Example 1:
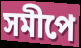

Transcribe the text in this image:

সমীপে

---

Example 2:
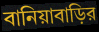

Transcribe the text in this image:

বানিয়াবাড়ির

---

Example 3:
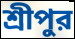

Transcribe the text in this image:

শ্রীপুর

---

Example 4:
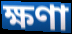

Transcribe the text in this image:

ক্ষণা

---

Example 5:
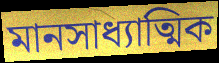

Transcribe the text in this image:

মানসাধ্যাত্মিক